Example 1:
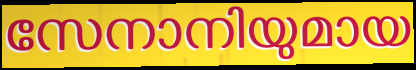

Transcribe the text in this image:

സേനാനിയുമായ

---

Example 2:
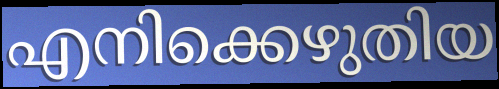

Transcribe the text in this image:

എനിക്കെഴുതിയ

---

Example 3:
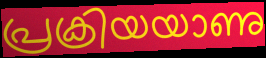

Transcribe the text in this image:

പ്രക്രിയയാണു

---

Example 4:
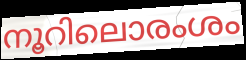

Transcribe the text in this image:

നൂറിലൊരംശം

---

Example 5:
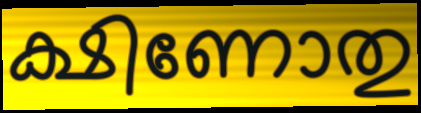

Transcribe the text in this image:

ക്ഷിണോതു